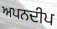
ਅਪਨਦੀਪ